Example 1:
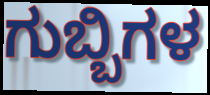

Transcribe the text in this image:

ಗುಬ್ಬಿಗಳ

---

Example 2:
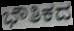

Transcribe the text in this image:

ಭೌತಿಕದ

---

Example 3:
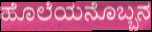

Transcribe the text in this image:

ಹೊಲೆಯನೊಬ್ಬನ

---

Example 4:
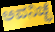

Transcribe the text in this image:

ಅವನಿಚ್ಛೆ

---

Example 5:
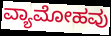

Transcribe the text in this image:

ವ್ಯಾಮೋಹವು